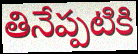
తినేప్పటికి